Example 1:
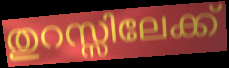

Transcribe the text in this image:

തുറസ്സിലേക്ക്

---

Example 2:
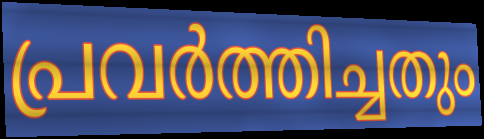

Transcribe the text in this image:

പ്രവർത്തിച്ചതും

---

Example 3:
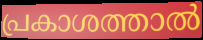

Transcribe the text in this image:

പ്രകാശത്താൽ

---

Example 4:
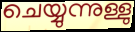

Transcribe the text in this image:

ചെയ്യുന്നുള്ളു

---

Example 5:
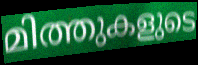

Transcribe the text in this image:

മിത്തുകളുടെ